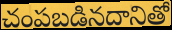
చంపబడినదానితో